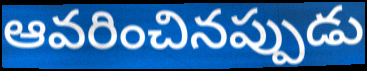
ఆవరించినప్పుడు